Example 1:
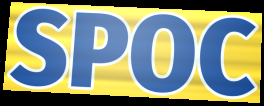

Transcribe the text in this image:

SPOC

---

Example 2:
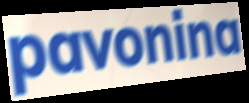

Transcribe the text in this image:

pavonina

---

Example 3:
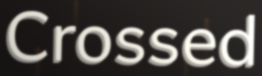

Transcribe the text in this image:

Crossed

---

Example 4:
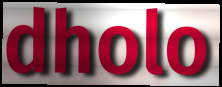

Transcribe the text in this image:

dholo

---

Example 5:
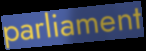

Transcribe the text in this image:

parliament